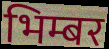
भिम्बर